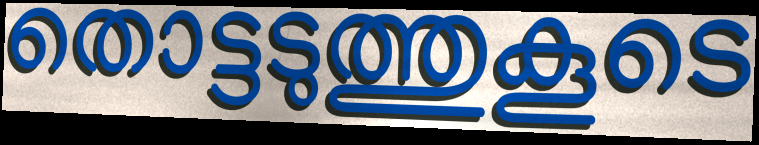
തൊട്ടടുത്തുകൂടെ